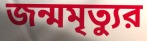
জন্মমৃত্যুর